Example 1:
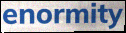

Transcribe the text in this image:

enormity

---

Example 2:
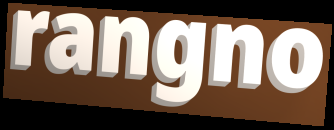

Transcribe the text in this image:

rangno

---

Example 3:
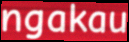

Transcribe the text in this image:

ngakau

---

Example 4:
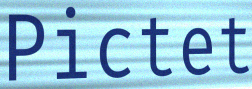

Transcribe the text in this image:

Pictet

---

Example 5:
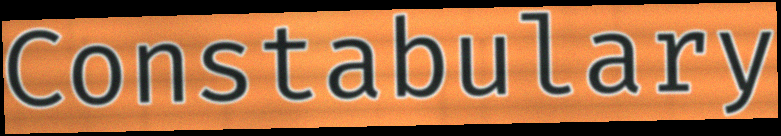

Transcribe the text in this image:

Constabulary